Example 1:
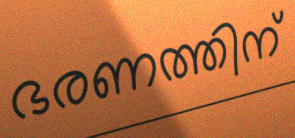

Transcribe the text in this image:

ഭരണത്തിന്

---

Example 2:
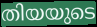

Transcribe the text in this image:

തിയയുടെ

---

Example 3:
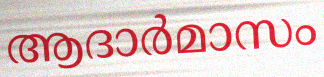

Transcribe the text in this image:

ആദാർമാസം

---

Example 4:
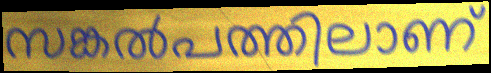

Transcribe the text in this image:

സങ്കൽപത്തിലാണ്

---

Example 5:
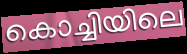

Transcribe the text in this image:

കൊച്ചിയിലെ